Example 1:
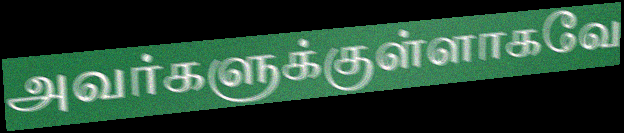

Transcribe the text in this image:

அவர்களுக்குள்ளாகவே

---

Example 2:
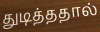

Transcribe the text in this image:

துடித்ததால்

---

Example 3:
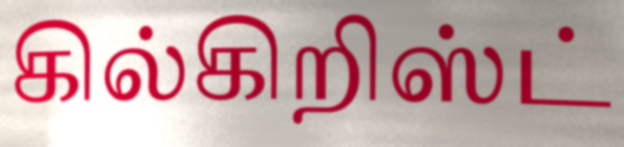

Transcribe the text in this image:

கில்கிறிஸ்ட்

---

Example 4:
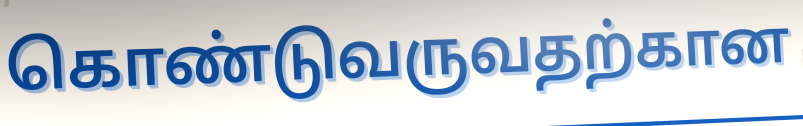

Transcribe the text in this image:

கொண்டுவருவதற்கான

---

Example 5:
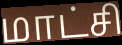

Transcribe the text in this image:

மாட்சி